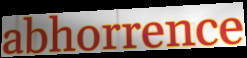
abhorrence